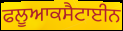
ਫਲੂਆਕਸੈਟਾਈਨ